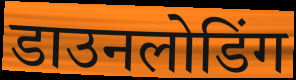
डाउनलोडिंग